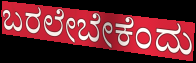
ಬರಲೇಬೇಕೆಂದು